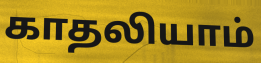
காதலியாம்